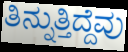
ತಿನ್ನುತ್ತಿದ್ದೆವು